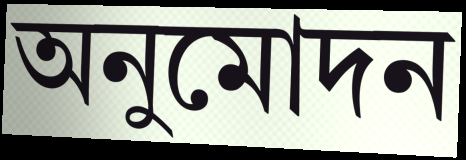
অনুমোদন